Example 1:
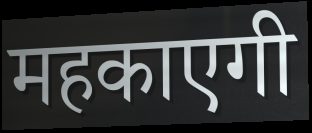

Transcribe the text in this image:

महकाएगी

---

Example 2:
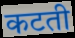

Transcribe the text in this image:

कटती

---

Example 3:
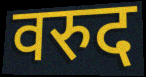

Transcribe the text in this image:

वरुद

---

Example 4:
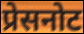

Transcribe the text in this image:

प्रेसनोट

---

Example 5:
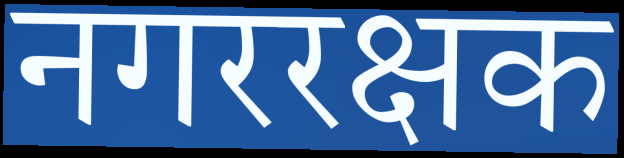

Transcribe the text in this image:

नगररक्षक